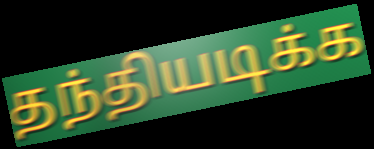
தந்தியடிக்க